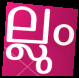
ല്ലും